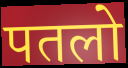
पतलो